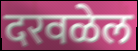
दरवळेल